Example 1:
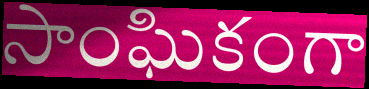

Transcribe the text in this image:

సాంఘికంగా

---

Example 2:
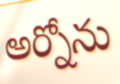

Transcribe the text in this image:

అర్నోను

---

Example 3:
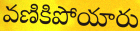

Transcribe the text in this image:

వణికిపోయారు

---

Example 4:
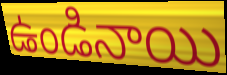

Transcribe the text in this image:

ఉండినాయి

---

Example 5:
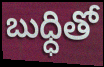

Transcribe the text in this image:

బుధ్ధితో